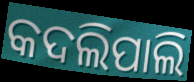
କଦଲିପାଲି